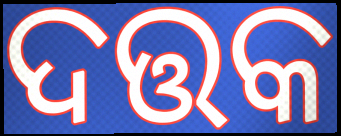
ଦତ୍ତକ